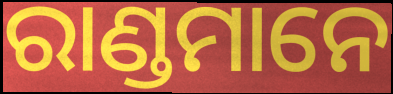
ରାଣ୍ଡମାନେ